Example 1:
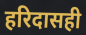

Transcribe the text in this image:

हरिदासही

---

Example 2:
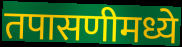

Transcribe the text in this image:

तपासणीमध्ये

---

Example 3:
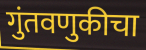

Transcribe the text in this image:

गुंतवणुकीचा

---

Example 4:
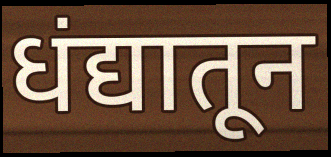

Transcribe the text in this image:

धंद्यातून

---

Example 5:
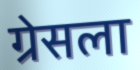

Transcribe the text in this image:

ग्रेसला